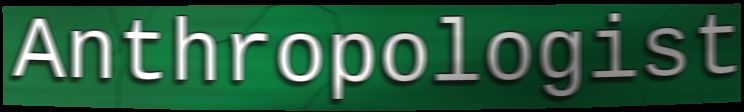
Anthropologist